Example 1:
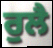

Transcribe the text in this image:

ਰੁਲੈ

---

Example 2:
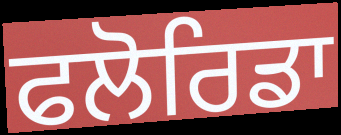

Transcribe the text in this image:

ਫਲੋਰਿਡਾ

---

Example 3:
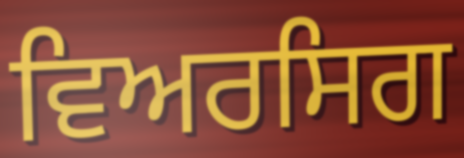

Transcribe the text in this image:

ਵਿਅਰਸਿਗ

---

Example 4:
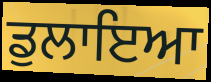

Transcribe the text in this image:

ਡੁਲਾਇਆ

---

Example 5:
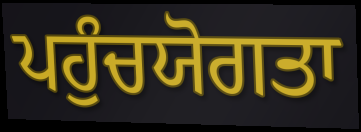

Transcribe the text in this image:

ਪਹੁੰਚਯੋਗਤਾ